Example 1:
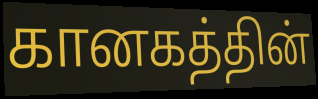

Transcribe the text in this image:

கானகத்தின்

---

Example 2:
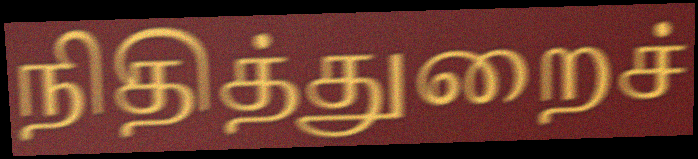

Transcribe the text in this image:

நிதித்துறைச்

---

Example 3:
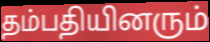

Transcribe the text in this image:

தம்பதியினரும்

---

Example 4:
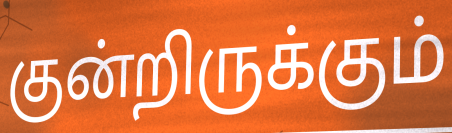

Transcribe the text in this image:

குன்றிருக்கும்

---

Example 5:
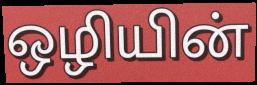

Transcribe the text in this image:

ஒழியின்